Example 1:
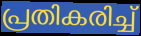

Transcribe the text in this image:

പ്രതികരിച്ച്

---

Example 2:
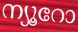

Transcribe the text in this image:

ന്യൂറോ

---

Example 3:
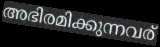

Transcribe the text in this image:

അഭിരമിക്കുന്നവര്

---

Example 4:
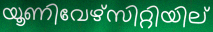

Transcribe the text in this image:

യൂണിവേഴ്സിറ്റിയില്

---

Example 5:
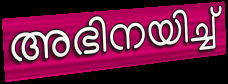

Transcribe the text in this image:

അഭിനയിച്ച്